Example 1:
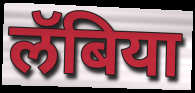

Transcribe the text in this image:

लॅबिया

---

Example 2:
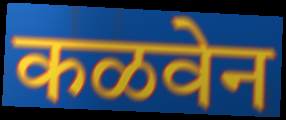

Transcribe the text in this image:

कळवेन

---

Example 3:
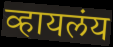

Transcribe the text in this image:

व्हायलंय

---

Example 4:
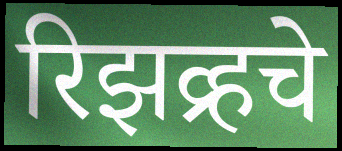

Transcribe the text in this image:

रिझव्र्हचे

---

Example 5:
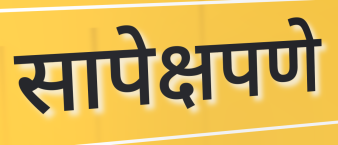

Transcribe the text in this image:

सापेक्षपणे